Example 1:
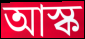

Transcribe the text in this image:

আস্ক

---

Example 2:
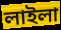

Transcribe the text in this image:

লাইলা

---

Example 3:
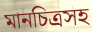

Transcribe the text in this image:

মানচিত্রসহ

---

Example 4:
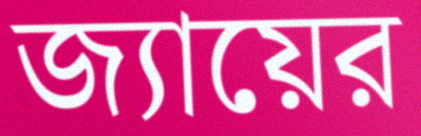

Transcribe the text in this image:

জ্যায়ের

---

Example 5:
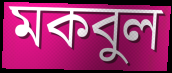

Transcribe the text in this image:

মকবুল